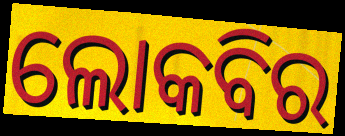
ଲୋକବିର